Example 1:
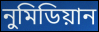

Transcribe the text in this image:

নুমিডিয়ান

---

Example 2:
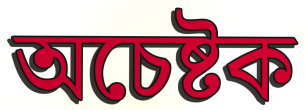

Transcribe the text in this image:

অচেষ্টক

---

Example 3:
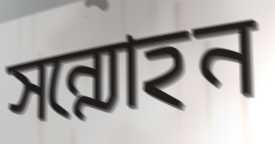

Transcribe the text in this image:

সন্মোহন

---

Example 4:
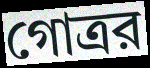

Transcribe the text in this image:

গোত্রর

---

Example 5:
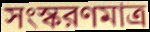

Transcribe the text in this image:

সংস্করণমাত্র